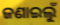
ଜଣାଇଲୁଁ